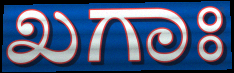
ಖಗಾಃ